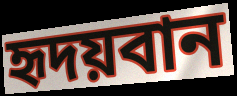
হৃদয়বান